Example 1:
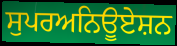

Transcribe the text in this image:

ਸੁਪਰਅਨਿਊਏਸ਼ਨ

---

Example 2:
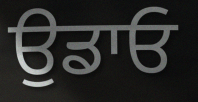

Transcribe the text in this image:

ਉਡਾਓ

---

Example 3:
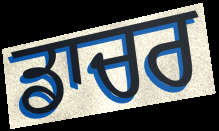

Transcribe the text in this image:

ਡਾਚਰ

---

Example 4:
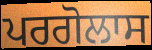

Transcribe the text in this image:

ਪਰਗੋਲਾਸ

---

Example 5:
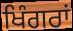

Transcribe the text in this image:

ਖਿੰਗਰਾਂ